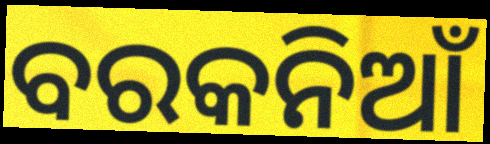
ବରକନିଆଁ